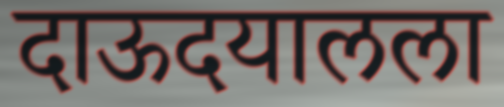
दाऊदयालला